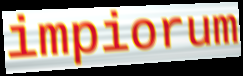
impiorum